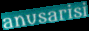
anusarisi